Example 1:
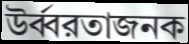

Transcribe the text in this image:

উর্ব্বরতাজনক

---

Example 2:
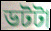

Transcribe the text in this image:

ডটটা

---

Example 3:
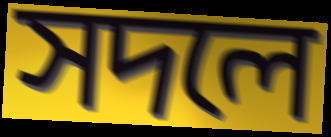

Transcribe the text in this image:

সদলে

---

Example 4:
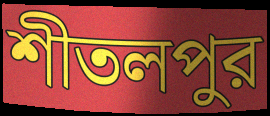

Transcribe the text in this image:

শীতলপুর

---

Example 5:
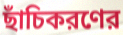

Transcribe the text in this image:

ছাঁচিকরণের